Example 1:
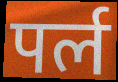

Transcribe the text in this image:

पर्ल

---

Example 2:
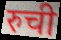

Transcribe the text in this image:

रुची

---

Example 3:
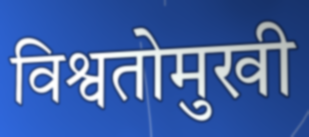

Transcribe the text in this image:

विश्वतोमुखी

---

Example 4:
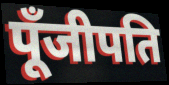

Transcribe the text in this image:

पूँजीपति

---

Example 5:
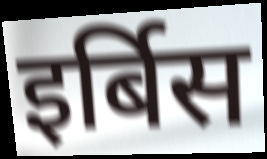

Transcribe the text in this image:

इर्बिस